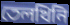
তেলখিনি